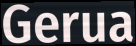
Gerua